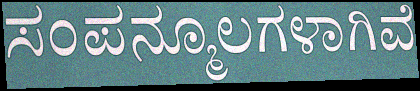
ಸಂಪನ್ಮೂಲಗಳಾಗಿವೆ